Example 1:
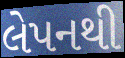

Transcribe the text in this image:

લેપનથી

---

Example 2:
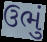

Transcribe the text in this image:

ઉભું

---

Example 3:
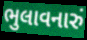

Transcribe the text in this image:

ભુલાવનારું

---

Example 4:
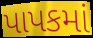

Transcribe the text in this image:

પાપકમાં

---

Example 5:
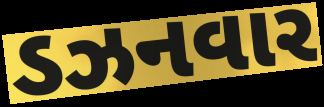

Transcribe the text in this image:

ડઝનવાર